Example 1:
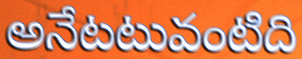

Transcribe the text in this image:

అనేటటువంటిది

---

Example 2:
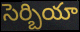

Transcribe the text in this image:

సెర్బియా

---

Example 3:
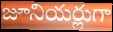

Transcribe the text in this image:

జూనియర్లుగా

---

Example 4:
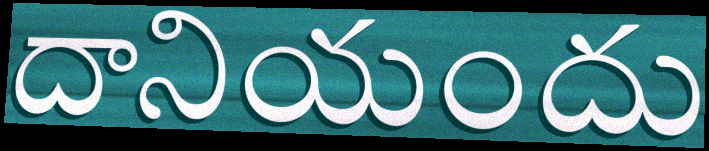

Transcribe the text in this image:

దానియందు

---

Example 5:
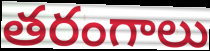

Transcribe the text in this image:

తరంగాలు